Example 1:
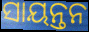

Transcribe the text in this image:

ସାୟନ୍ତନ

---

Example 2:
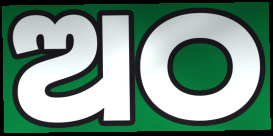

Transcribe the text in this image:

ଅଠ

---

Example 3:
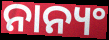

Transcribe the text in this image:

ନାନ୍ୟଂ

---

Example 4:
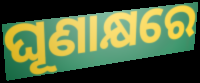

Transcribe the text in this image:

ଘୂଣାକ୍ଷରେ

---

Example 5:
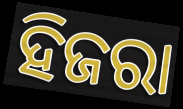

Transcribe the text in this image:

ହିଜରା